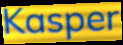
Kasper